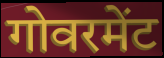
गोवरमेंट